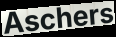
Aschers